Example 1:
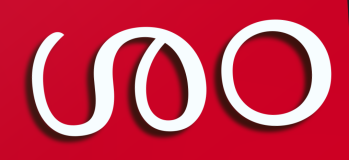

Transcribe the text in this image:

ശഠ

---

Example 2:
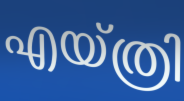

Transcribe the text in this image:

എയ്ത്രി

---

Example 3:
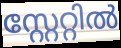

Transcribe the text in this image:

സ്റ്റേറ്റിൽ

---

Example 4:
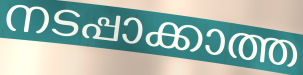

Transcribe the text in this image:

നടപ്പാക്കാത്ത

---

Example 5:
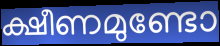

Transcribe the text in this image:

ക്ഷീണമുണ്ടോ